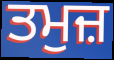
ਤਮੁਜ਼